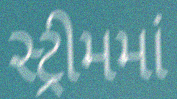
સ્ટ્રીમમાં